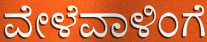
ವೇಳೆವಾಳಿಂಗೆ